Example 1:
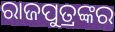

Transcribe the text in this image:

ରାଜପୁତ୍ରଙ୍କର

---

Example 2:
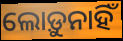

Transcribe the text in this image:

ଲୋଡ଼ୁନାହିଁ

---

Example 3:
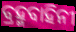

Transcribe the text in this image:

ବ୍ରହ୍ମବାହିନୀ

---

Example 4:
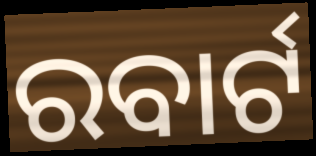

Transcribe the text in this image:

ରବାର୍ଟ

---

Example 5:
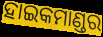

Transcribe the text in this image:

ହାଇକମାଣ୍ଡର